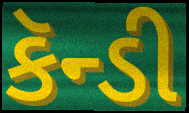
કૅન્ડી